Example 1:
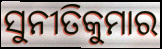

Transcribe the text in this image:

ସୁନୀତିକୁମାର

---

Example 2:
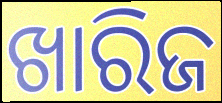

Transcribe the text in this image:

ଖାରିଜ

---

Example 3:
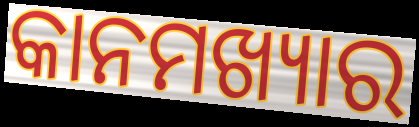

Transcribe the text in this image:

କାନମଖ୍ୟାର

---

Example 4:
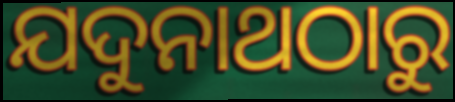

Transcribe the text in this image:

ଯଦୁନାଥଠାରୁ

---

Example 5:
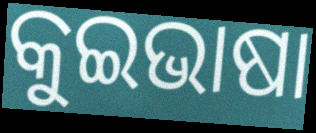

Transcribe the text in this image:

କୁଇଭାଷା